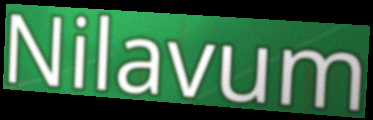
Nilavum